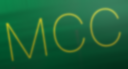
MCC